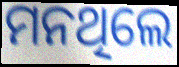
ମନଥିଲେ